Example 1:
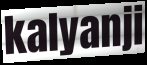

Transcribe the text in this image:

kalyanji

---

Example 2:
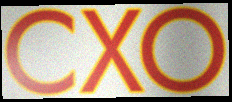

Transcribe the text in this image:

CXO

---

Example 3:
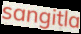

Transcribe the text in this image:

sangitla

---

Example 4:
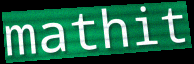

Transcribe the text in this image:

mathit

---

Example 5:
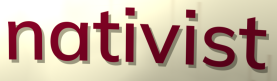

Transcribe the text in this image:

nativist